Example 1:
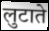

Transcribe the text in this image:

लुटाते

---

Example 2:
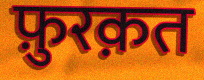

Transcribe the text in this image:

फ़ुरक़त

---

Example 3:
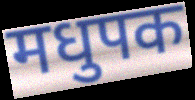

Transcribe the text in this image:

मधुपक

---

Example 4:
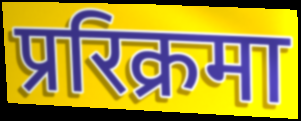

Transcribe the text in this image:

प्ररिक्रमा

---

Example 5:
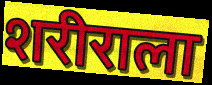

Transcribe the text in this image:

शरीराला